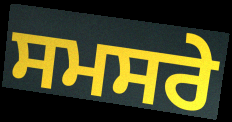
ਸਮਸਰੇ